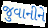
જુવાનીને